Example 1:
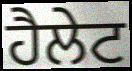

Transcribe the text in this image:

ਹੈਲੇਟ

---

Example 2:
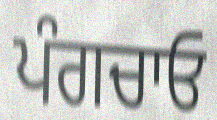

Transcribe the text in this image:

ਪੰਗਚਾਓ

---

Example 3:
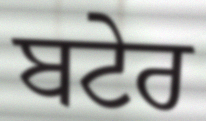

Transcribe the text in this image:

ਬਟੇਰ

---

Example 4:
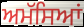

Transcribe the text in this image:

ਅਮੱਸਿਆਂ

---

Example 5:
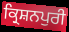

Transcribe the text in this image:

ਕ੍ਰਿਸ਼ਨਪੁਰੀ